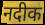
नदीक